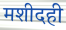
मशीदही